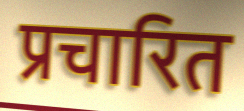
प्रचारित